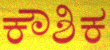
ಕೌಶಿಕ